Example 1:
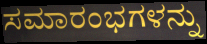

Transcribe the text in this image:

ಸಮಾರಂಭಗಳನ್ನು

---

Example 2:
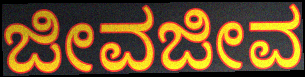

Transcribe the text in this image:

ಜೀವಜೀವ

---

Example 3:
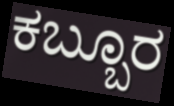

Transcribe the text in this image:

ಕಬ್ಬೂರ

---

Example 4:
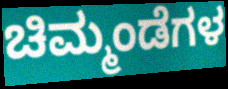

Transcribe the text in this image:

ಚಿಮ್ಮಂಡೆಗಳ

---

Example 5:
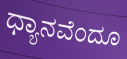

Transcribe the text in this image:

ಧ್ಯಾನವೆಂದೂ